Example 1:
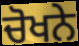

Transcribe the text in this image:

ਚੋਖਨੇ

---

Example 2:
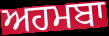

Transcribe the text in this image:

ਅਹਮਬਾ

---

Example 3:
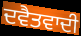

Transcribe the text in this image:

ਦਵੈਤਵਾਦੀ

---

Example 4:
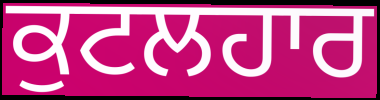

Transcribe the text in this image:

ਕੁਟਲਹਾਰ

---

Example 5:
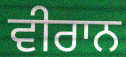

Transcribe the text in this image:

ਵੀਰਾਨ